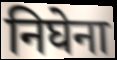
निघेना